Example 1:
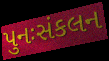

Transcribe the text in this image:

પુનઃસંકલન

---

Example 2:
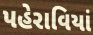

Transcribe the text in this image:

પહેરાવિયાં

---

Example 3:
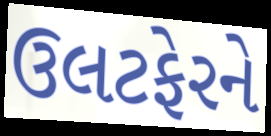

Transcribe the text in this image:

ઉલટફેરને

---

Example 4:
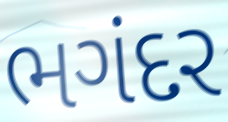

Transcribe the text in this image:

ભગંદર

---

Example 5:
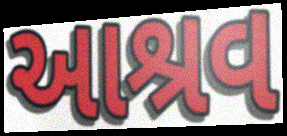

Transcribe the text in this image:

આશ્રવ